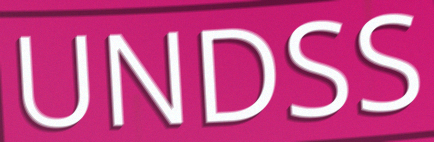
UNDSS